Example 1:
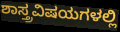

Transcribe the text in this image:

ಶಾಸ್ತ್ರವಿಷಯಗಳಲ್ಲಿ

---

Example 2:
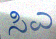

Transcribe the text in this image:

ಸಿಎ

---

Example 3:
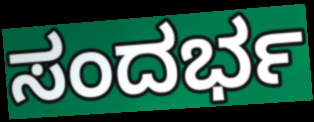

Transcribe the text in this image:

ಸಂದರ್ಭ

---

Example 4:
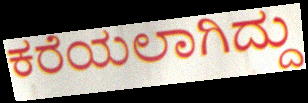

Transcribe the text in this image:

ಕರೆಯಲಾಗಿದ್ದು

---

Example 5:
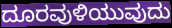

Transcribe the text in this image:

ದೂರವುಳಿಯುವುದು